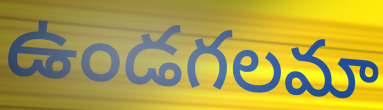
ఉండగలమా